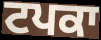
ਟਪਕਾ